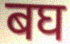
बघ